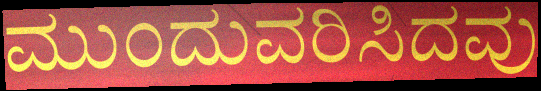
ಮುಂದುವರಿಸಿದವು